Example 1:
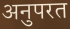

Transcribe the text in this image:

अनुपरत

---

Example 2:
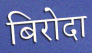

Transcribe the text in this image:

बिरोदा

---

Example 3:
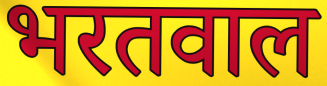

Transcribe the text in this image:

भरतवाल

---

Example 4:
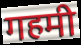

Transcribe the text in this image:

गहमी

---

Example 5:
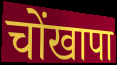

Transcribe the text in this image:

चोंखापा